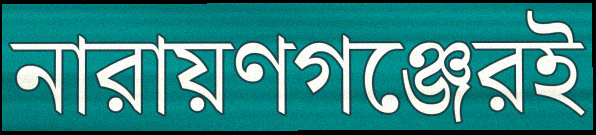
নারায়ণগঞ্জেরই